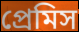
প্রেমিস